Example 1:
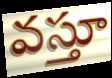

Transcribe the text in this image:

వస్తూ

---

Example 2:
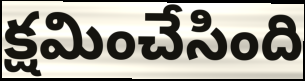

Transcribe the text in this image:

క్షమించేసింది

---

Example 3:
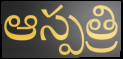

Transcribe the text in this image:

ఆస్పత్రి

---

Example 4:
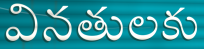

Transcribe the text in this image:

వినతులకు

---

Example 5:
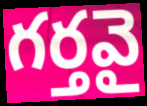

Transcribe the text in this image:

గర్తవై